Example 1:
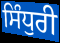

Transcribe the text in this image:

ਸਿੰਧੁਰੀ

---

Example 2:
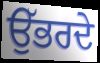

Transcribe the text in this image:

ਉੱਭਰਦੇ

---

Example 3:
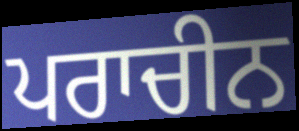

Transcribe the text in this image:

ਪਰਾਚੀਨ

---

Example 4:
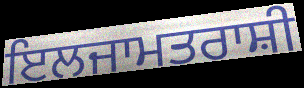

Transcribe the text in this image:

ਇਲਜਾਮਤਰਾਸ਼ੀ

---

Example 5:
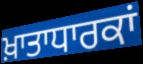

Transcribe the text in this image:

ਖ਼ਾਤਾਧਾਰਕਾਂ